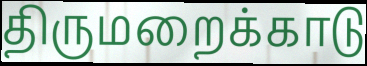
திருமறைக்காடு